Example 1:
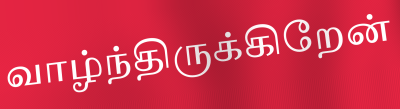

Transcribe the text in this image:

வாழ்ந்திருக்கிறேன்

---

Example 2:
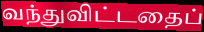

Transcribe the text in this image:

வந்துவிட்டதைப்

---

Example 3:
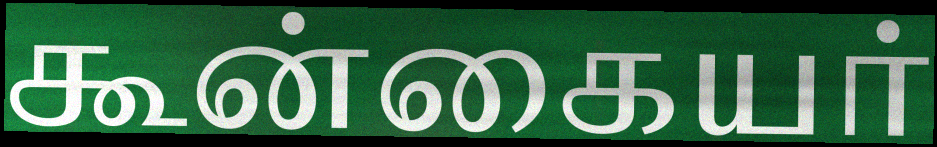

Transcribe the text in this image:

கூன்கையர்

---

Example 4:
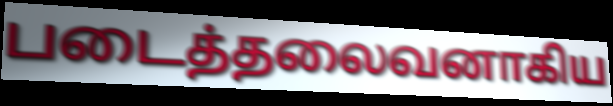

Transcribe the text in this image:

படைத்தலைவனாகிய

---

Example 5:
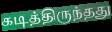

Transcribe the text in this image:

கடித்திருந்தது